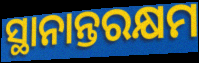
ସ୍ଥାନାନ୍ତରକ୍ଷମ